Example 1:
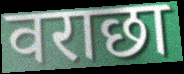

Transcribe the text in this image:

वराछा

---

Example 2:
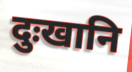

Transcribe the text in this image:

दुःखानि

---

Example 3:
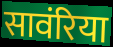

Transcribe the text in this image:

सावंरिया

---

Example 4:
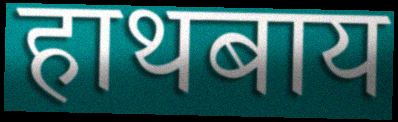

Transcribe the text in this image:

हाथबाय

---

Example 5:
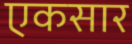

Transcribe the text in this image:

एकसार